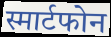
स्मार्टफोन